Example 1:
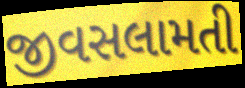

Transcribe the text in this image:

જીવસલામતી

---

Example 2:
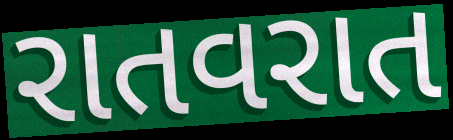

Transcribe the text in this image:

રાતવરાત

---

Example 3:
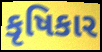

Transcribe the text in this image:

કૃષિકાર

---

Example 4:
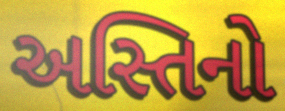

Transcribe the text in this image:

અસ્તિનો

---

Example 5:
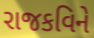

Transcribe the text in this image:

રાજકવિને